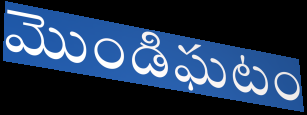
మొండిఘటం